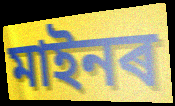
মাইনৰ